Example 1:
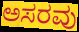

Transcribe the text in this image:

ಅಸರವು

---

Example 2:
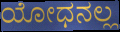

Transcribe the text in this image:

ಯೋಧನಲ್ಲ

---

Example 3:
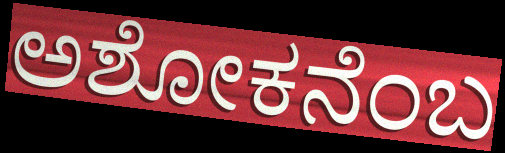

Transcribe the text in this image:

ಅಶೋಕನೆಂಬ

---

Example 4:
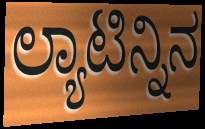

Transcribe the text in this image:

ಲ್ಯಾಟಿನ್ನಿನ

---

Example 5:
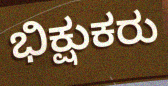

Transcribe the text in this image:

ಭಿಕ್ಷುಕರು